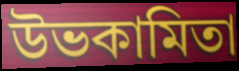
উভকামিতা